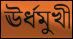
ঊর্ধমুখী